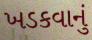
ખડકવાનું